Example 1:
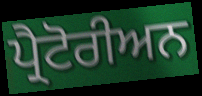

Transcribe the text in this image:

ਪ੍ਰੈਟੋਰੀਅਨ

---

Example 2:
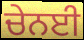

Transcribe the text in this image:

ਚੇਨਈ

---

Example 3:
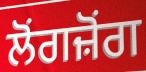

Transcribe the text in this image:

ਲੋਂਗਜ਼ੋਂਗ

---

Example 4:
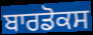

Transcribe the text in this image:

ਬਾਰਡੋਕਸ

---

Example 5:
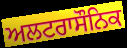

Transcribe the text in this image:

ਅਲਟਰਾਸੌਨਿਕ